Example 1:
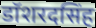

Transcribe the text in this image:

डॉशरदसिंह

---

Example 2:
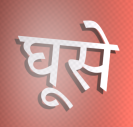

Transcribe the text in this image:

घूसे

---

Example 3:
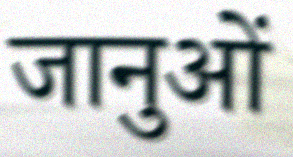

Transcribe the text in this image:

जानुओं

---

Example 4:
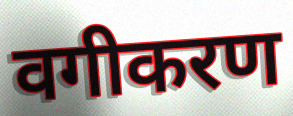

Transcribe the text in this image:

वगीकरण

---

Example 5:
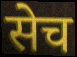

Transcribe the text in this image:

सेच